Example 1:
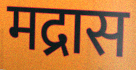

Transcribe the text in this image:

मद्रास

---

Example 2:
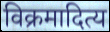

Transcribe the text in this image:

विक्रमादित्य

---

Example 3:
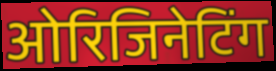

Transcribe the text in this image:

ओरिजिनेटिंग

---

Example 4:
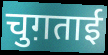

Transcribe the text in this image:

चुग़ताई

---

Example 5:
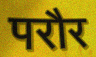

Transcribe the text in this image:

परौर